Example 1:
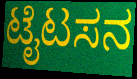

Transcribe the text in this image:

ಟೈಟಸನ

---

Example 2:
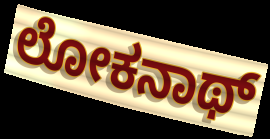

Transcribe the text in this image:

ಲೋಕನಾಥ್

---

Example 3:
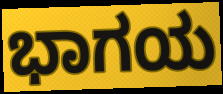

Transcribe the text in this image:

ಭಾಗಯ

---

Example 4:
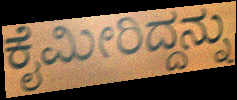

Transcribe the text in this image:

ಕೈಮೀರಿದ್ದನ್ನು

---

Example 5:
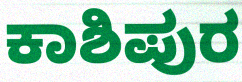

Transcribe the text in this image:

ಕಾಶಿಪುರ